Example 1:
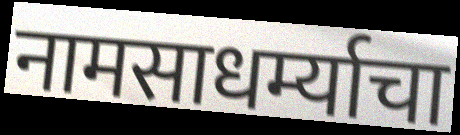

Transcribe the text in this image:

नामसाधर्म्याचा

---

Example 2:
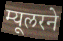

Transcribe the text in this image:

म्यूलरने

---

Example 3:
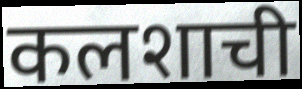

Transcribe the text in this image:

कलशाची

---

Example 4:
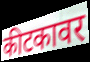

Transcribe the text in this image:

कीटकावर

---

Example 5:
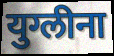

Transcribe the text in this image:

युग्लीना